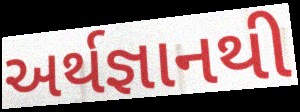
અર્થજ્ઞાનથી